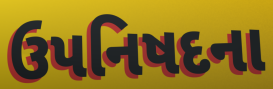
ઉપનિષદના